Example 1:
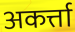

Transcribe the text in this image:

अकर्त्ता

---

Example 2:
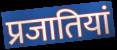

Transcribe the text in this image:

प्रजातियां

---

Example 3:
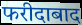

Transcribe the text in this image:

फरीदाबाद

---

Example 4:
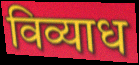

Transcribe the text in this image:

विव्याध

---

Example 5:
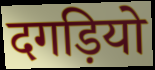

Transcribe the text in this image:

दगड़ियो